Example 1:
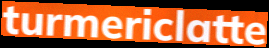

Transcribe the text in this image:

turmericlatte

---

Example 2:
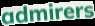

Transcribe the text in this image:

admirers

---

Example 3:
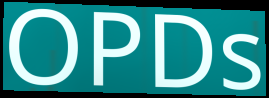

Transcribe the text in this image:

OPDs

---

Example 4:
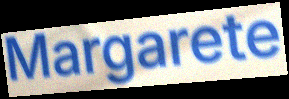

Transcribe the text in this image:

Margarete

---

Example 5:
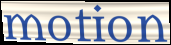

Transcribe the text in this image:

motion